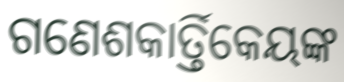
ଗଣେଶକାର୍ତ୍ତିକେୟଙ୍କ